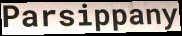
Parsippany